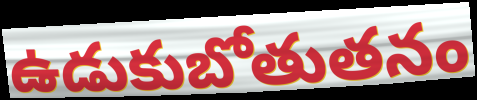
ఉడుకుబోతుతనం